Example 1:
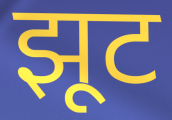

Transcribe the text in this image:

झूट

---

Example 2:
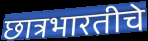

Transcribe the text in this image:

छात्रभारतीचे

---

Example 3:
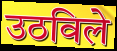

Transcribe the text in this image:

उठविले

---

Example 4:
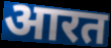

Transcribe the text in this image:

आरत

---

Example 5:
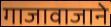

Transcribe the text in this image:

गाजावाजाने